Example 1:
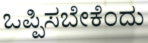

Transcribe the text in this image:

ಒಪ್ಪಿಸಬೇಕೆಂದು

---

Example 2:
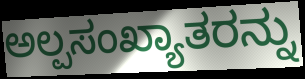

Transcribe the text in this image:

ಅಲ್ಪಸಂಖ್ಯಾತರನ್ನು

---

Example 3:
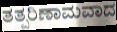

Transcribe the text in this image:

ತತ್ಪರಿಣಾಮವಾದ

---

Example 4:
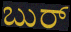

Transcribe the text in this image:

ಬುರ್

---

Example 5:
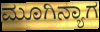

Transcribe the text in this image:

ಮೂಗಿನ್ಯಾಗ